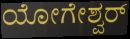
ಯೋಗೇಶ್ವರ್